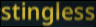
stingless